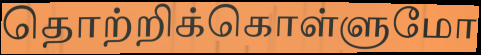
தொற்றிக்கொள்ளுமோ